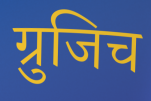
ग्रुजिच